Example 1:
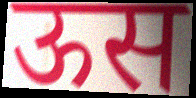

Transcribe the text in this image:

ऊस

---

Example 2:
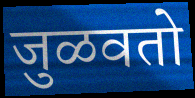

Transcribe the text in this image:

जुळवतो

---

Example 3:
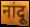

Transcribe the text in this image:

नांदू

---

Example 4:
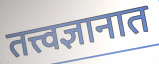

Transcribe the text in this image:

तत्त्वज्ञानात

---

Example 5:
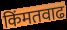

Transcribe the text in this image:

किंमतवाढ